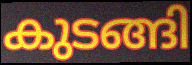
കുടങ്ങി